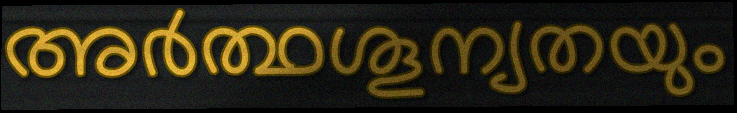
അർത്ഥശൂന്യതയും